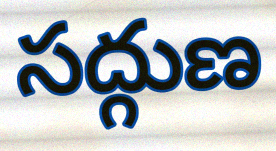
సద్గుణ